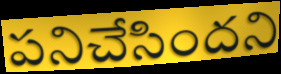
పనిచేసిందని